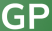
GP